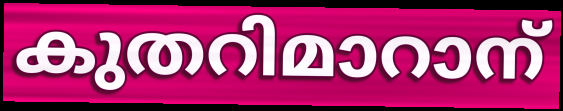
കുതറിമാറാന്